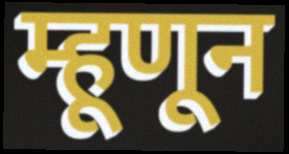
म्हूणून